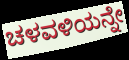
ಚಳವಳಿಯನ್ನೇ